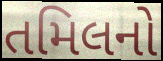
તમિલનો